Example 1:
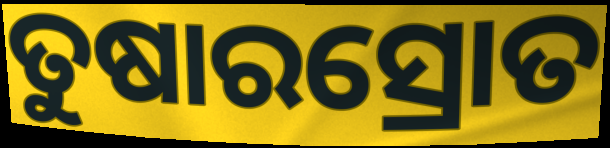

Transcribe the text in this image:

ତୁଷାରସ୍ରୋତ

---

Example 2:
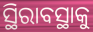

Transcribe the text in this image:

ସ୍ଥିରାବସ୍ଥାକୁ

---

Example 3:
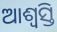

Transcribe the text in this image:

ଆଶ୍ଵସ୍ତି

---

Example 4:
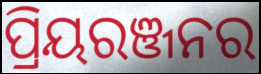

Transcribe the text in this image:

ପ୍ରିୟରଞ୍ଜନର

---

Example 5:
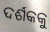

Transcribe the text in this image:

ଦର୍ଶକକୁ